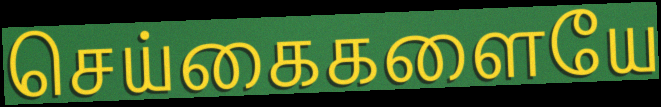
செய்கைகளையே